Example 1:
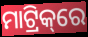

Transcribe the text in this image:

ମାଟ୍ରିକ୍‌ରେ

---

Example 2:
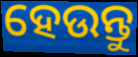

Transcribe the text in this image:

ହେଉନ୍ତୁ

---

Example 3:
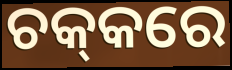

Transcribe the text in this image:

ଚକ୍‌କରେ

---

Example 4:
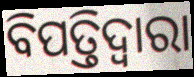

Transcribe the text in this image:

ବିପତ୍ତିଦ୍ୱାରା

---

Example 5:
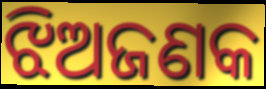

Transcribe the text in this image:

ଝିଅଜଣକ